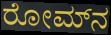
ರೋಮ್‍ನ